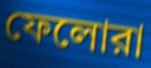
ফেলোরা